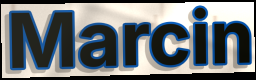
Marcin